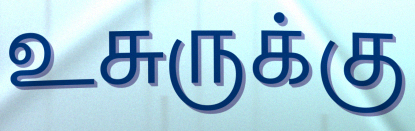
உசுருக்கு